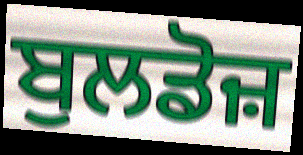
ਬੁਲਡੋਜ਼